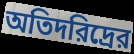
অতিদরিদ্রের